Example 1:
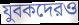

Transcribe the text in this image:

যুবকদেরও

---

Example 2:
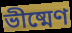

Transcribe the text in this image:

ভীষ্মেণ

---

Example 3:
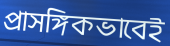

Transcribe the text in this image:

প্রাসঙ্গিকভাবেই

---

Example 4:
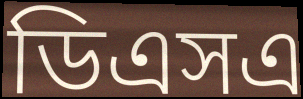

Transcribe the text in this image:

ডিএসএ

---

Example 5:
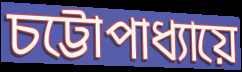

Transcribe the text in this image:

চট্টোপাধ্যায়ে